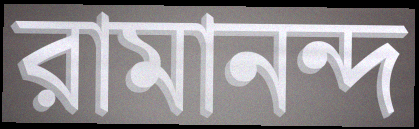
রামানন্দ